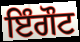
ਇੰਗੌਟ